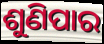
ଶୁଣିପାର